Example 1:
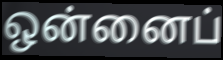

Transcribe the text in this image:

ஒன்னைப்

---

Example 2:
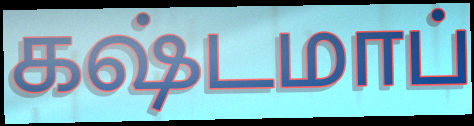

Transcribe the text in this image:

கஷ்டமாப்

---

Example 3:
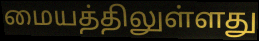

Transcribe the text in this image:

மையத்திலுள்ளது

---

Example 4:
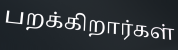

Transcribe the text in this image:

பறக்கிறார்கள்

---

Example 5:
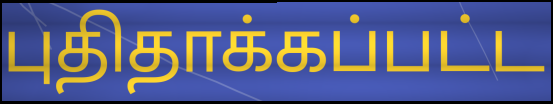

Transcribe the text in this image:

புதிதாக்கப்பட்ட